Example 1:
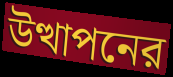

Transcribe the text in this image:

উত্থাপনের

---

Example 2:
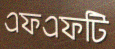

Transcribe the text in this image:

এফএফটি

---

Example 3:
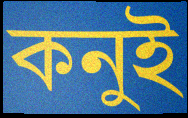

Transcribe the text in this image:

কনুই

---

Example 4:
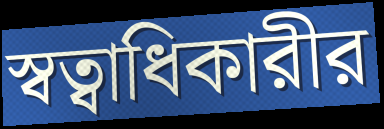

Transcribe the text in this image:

স্বত্বাধিকারীর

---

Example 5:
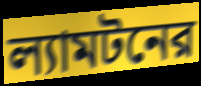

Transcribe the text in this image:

ল্যামটনের